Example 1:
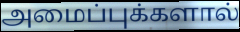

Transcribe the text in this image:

அமைப்புக்களால்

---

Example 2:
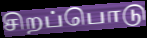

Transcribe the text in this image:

சிறப்பொடு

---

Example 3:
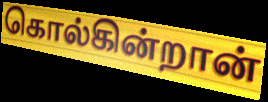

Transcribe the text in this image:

கொல்கின்றான்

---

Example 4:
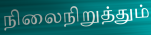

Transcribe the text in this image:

நிலைநிறுத்தும்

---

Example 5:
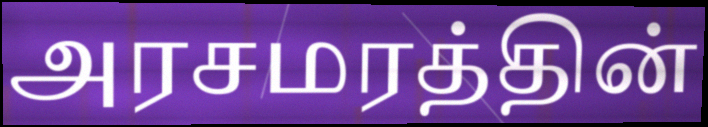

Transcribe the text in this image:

அரசமரத்தின்